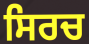
ਸਿਰਚ